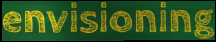
envisioning